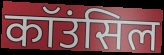
कॉउंसिल